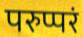
परुप्परं